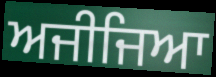
ਅਜੀਜਿਆ